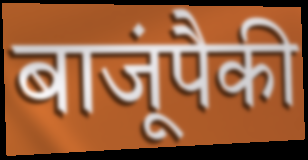
बाजूंपैकी